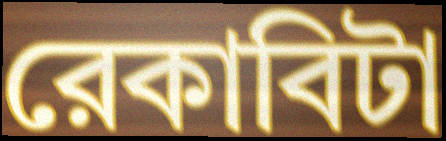
রেকাবিটা